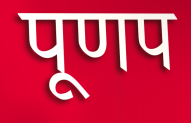
पूणप